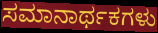
ಸಮಾನಾರ್ಥಕಗಳು